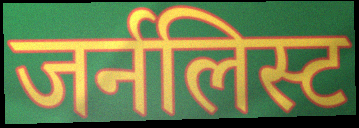
जर्नलिस्ट